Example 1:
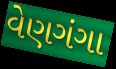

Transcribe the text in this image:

વેણગંગા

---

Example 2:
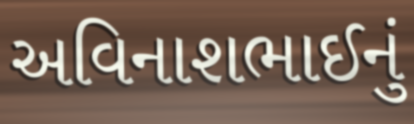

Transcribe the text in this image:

અવિનાશભાઈનું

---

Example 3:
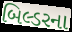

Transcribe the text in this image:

બિલ્ડરના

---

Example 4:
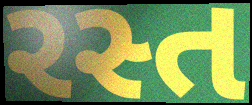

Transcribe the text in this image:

રસ્ત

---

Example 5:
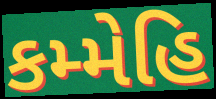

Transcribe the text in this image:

કમ્મેહિ